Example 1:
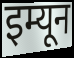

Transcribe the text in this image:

इम्यून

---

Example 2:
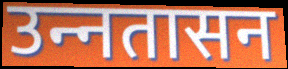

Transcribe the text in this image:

उन्नतासन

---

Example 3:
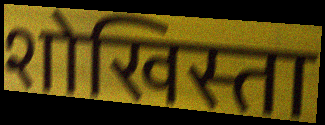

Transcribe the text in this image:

शोखिस्ता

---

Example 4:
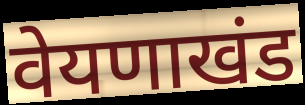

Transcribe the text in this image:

वेयणाखंड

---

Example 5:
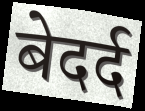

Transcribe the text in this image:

बेदर्द